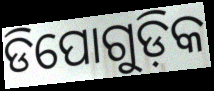
ଡିପୋଗୁଡ଼ିକ